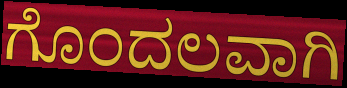
ಗೊಂದಲವಾಗಿ